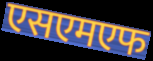
एसएमएफ